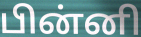
பின்னி